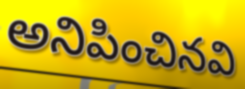
అనిపించినవి